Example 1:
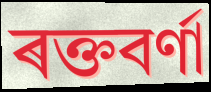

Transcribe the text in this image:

ৰক্তবৰ্ণা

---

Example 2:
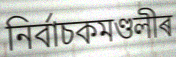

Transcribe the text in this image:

নিৰ্বাচকমণ্ডলীৰ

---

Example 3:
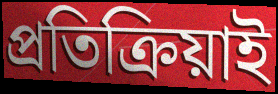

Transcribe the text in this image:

প্ৰতিক্ৰিয়াই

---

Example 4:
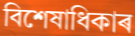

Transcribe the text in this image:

বিশেষাধিকাৰ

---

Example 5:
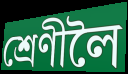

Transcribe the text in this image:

শ্ৰেণীলৈ